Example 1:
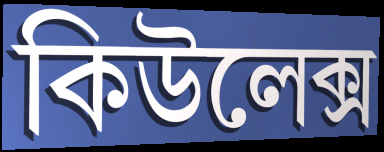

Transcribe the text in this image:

কিউলেক্স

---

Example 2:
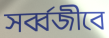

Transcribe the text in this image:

সর্ব্বজীবে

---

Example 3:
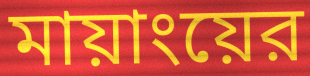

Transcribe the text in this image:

মায়াংয়ের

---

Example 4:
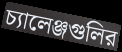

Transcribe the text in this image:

চ্যালেঞ্জগুলির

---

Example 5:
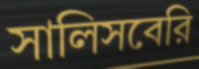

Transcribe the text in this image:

সালিসবেরি